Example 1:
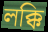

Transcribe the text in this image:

লক্কি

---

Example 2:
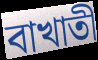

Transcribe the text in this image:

বাখাতী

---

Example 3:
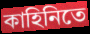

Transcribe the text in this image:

কাহিনিতে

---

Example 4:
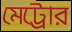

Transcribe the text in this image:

মেট্রোর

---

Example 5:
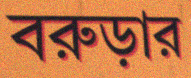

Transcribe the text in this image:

বরুড়ার